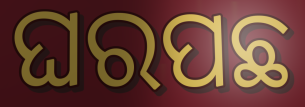
ଘରପଛ